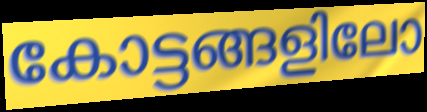
കോട്ടങ്ങളിലോ